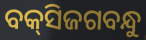
ବକ୍‌ସିଜଗବନ୍ଧୁ